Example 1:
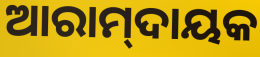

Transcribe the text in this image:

ଆରାମ୍‌ଦାୟକ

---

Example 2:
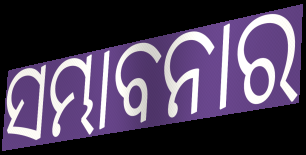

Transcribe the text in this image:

ସମ୍ଭାବନାର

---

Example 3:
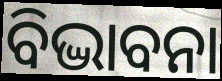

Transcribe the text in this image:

ବିଦ୍ଭାବନା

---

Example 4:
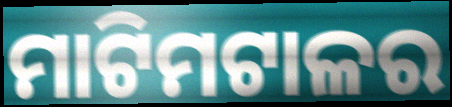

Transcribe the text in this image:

ମାଟିମଟାଳର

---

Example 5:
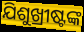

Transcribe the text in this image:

ଯିଶୁଖ୍ରୀଷ୍ଟଙ୍କ